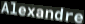
Alexandre